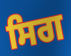
ਸਿਗ